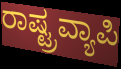
ರಾಷ್ಟ್ರವ್ಯಾಪಿ